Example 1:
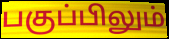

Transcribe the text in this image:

பகுப்பிலும்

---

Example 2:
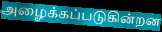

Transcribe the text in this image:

அழைக்கப்படுகின்றன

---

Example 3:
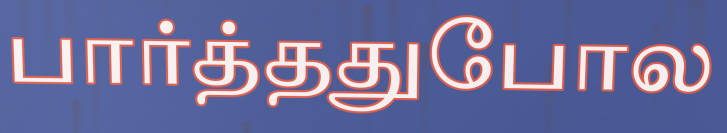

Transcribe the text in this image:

பார்த்ததுபோல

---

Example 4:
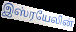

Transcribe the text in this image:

இஸ்ரயேலின்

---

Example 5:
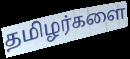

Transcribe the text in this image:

தமிழர்களை